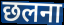
छलना